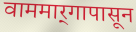
वाममार्गापासून